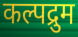
कल्पद्रुम